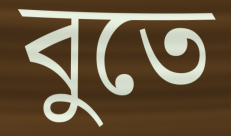
বুতে